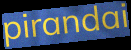
pirandai